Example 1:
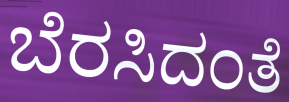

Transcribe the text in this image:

ಬೆರಸಿದಂತೆ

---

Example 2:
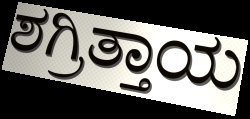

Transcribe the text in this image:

ಶಗ್ರಿತ್ತಾಯ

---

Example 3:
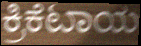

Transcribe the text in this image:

ಕ್ರಿಕೆಟಾಯ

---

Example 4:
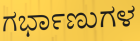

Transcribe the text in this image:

ಗರ್ಭಾಣುಗಳ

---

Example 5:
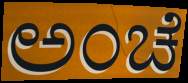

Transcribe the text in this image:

ಅಂಚೆ